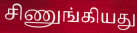
சிணுங்கியது